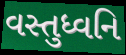
વસ્તુધ્વનિ